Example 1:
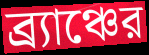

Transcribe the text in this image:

ব্র্যাঞ্চের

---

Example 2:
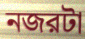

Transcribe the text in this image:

নজরটা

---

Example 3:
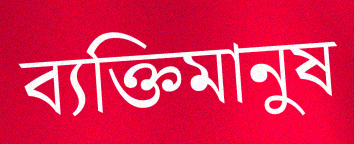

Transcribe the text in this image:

ব্যক্তিমানুষ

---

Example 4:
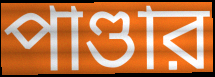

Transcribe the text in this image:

পাণ্ডার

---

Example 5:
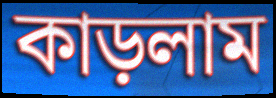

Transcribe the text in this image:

কাড়লাম